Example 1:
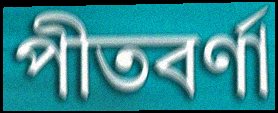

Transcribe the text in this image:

পীতবৰ্ণা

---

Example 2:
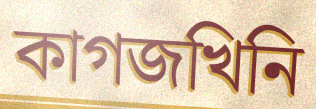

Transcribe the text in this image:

কাগজখিনি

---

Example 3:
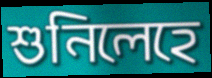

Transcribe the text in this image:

শুনিলেহে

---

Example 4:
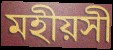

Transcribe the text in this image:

মহীয়সী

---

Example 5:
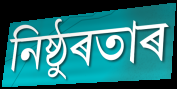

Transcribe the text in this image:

নিষ্ঠুৰতাৰ